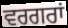
ਵਰਗਰਾਂ